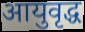
आयुवृद्ध